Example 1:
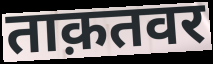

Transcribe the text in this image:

ताक़तवर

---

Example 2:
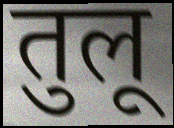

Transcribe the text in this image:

तुलू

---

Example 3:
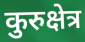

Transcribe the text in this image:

कुरुक्षेत्र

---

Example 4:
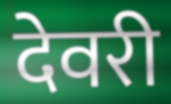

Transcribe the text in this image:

देवरी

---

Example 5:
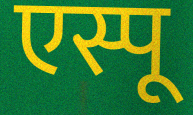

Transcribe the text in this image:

एस्पू